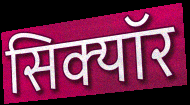
सिक्यॉर